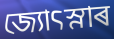
জ্যোৎস্নাৰ